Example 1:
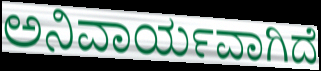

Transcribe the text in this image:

ಅನಿವಾರ್ಯವಾಗಿದೆ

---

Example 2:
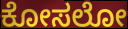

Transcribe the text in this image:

ಕೋಸಲೋ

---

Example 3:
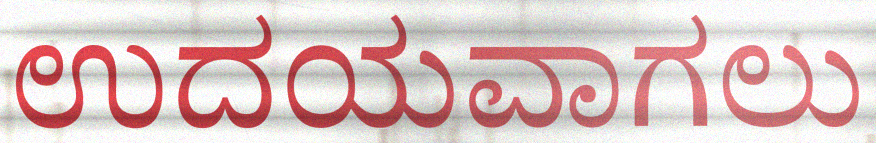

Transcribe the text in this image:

ಉದಯವಾಗಲು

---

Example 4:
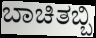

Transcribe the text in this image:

ಬಾಚಿತಬ್ಬಿ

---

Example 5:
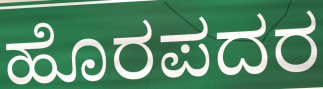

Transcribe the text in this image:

ಹೊರಪದರ